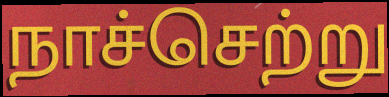
நாச்செற்று